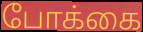
போக்கை